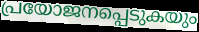
പ്രയോജനപ്പെടുകയും